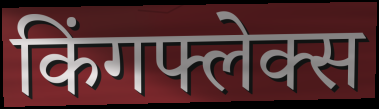
किंगफ्लेक्स